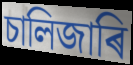
চালিজাৰি